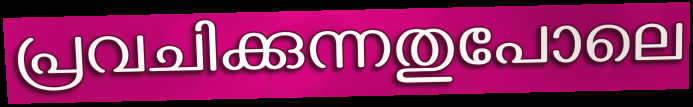
പ്രവചിക്കുന്നതുപോലെ